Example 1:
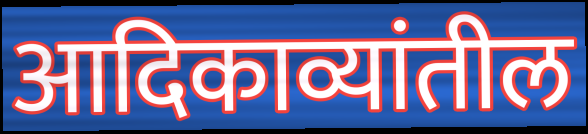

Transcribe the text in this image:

आदिकाव्यांतील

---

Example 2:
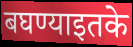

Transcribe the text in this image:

बघण्याइतके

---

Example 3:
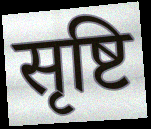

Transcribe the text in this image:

सृष्टि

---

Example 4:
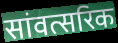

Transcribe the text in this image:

सांवत्सरिक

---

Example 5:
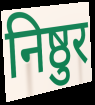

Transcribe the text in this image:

निष्ठुर